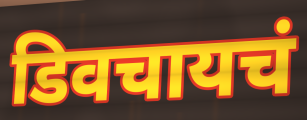
डिवचायचं